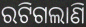
ରଟିଗଲାଣି